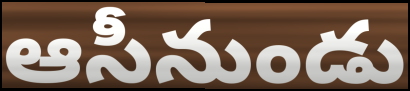
ఆసీనుండు